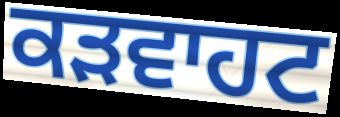
ਕੜਵਾਹਟ